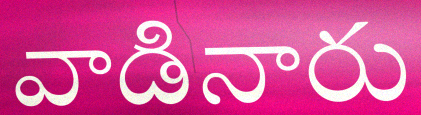
వాడినారు